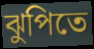
ঝুপিতে